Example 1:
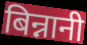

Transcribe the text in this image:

बिन्नानी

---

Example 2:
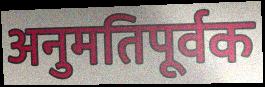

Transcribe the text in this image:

अनुमतिपूर्वक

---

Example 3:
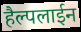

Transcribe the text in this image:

हैल्पलाईन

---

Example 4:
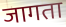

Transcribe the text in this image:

जागता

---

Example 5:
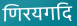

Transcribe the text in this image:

णिरयगदि